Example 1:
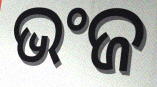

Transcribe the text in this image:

ଭଂଜ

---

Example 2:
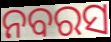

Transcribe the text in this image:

ନବରସ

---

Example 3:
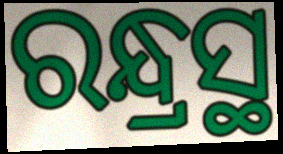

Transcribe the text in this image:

ରନ୍ଧ୍ରସ୍ଥ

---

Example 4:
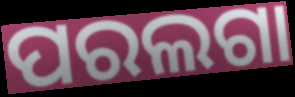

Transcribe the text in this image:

ପରଲଗା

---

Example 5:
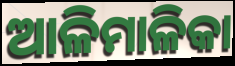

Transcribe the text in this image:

ଆଳିମାଳିକା